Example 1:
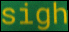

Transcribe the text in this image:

sigh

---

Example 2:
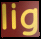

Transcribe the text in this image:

lig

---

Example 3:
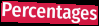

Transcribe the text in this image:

Percentages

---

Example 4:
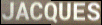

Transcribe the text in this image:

JACQUES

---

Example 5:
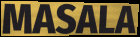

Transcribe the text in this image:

MASALA